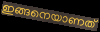
ഇങ്ങനെയാണത്